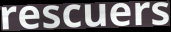
rescuers